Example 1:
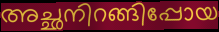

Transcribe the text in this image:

അച്ഛനിറങ്ങിപ്പോയ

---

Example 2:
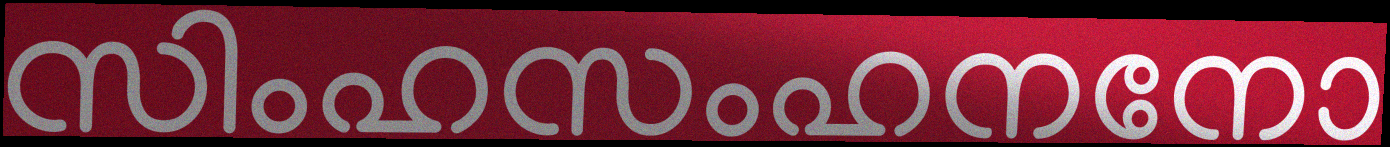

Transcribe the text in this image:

സിംഹസംഹനനോ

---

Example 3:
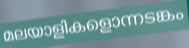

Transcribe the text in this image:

മലയാളികളൊന്നടങ്കം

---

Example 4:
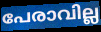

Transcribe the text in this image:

പേരാവില്ല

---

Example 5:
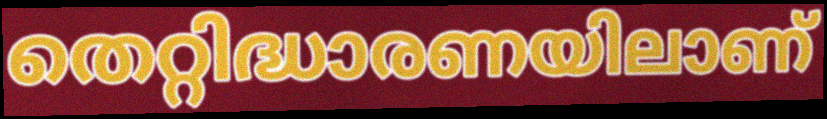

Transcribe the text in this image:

തെറ്റിദ്ധാരണയിലാണ്